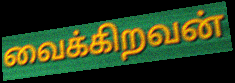
வைக்கிறவன்